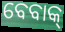
ବେବାକ୍